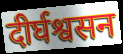
दीर्घश्वसन